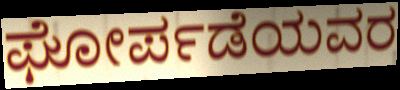
ಘೋರ್ಪಡೆಯವರ